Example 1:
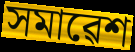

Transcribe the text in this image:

সমাৱেশ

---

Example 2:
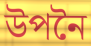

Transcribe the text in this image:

উপনৈ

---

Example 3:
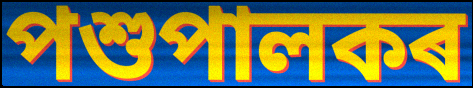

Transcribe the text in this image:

পশুপালকৰ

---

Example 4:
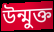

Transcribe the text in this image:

উন্মুক্ত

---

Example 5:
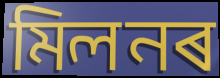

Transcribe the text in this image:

মিলনৰ